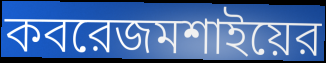
কবরেজমশাইয়ের